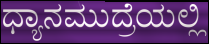
ಧ್ಯಾನಮುದ್ರೆಯಲ್ಲಿ